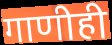
गाणीही